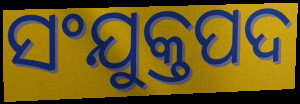
ସଂଯୁକ୍ତପଦ